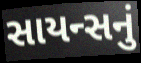
સાયન્સનું